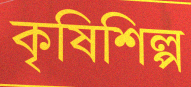
কৃষিশিল্প